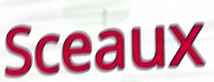
Sceaux